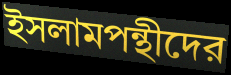
ইসলামপন্থীদের